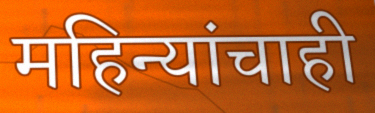
महिन्यांचाही